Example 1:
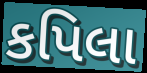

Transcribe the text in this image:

કપિલા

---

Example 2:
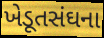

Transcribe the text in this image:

ખેડૂતસંઘના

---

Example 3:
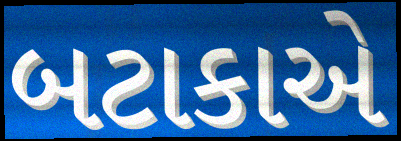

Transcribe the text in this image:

બટાકાએ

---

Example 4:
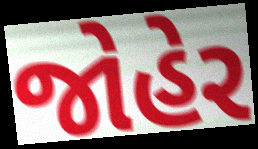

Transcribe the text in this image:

જોહેર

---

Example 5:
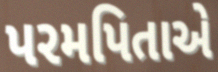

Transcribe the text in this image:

પરમપિતાએ